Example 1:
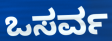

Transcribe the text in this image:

ಒಸರ್ವ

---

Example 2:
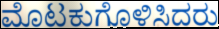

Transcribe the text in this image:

ಮೊಟಕುಗೊಳಿಸಿದರು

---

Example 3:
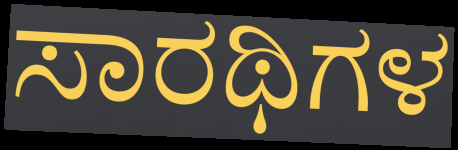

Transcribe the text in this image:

ಸಾರಥಿಗಳ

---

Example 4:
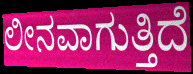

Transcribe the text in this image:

ಲೀನವಾಗುತ್ತಿದೆ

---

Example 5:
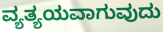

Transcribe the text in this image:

ವ್ಯತ್ಯಯವಾಗುವುದು